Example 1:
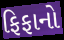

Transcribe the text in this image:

ફિફાનો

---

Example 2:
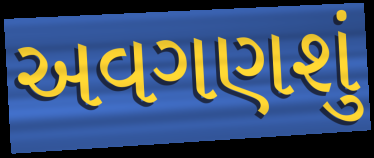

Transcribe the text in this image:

અવગણશું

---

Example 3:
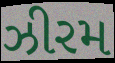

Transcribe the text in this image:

ઝીરમ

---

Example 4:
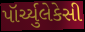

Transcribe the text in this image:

પૉર્ચ્યુલેકેસી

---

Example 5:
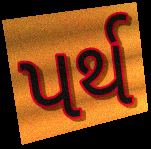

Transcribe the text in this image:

પર્થ